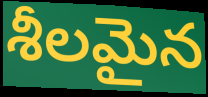
శీలమైన